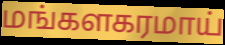
மங்களகரமாய்